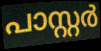
പാസ്റ്റർ